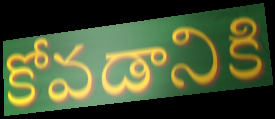
కోవడానికి